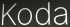
Koda